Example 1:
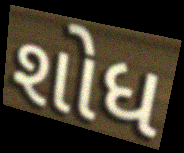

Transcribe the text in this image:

શોધ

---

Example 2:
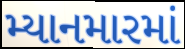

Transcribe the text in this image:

મ્યાનમારમાં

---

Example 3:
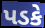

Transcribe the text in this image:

પડકે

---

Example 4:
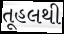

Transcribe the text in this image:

તૂહલથી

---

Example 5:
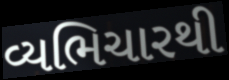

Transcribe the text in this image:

વ્યભિચારથી